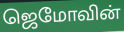
ஜெமோவின்